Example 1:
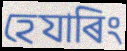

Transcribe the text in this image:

হেযাৰিং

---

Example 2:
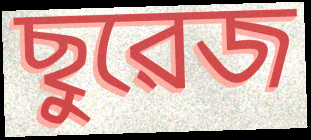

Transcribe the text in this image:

ছুৱেজ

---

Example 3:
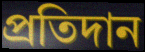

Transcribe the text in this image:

প্ৰতিদান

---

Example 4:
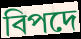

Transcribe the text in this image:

বিপদে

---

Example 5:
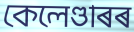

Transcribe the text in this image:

কেলেণ্ডাৰৰ